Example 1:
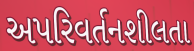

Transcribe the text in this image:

અપરિવર્તનશીલતા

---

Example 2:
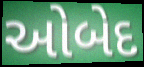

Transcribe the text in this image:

ઓબેદ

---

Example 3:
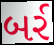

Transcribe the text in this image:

બર્ર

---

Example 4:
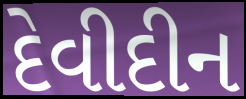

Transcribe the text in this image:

દેવીદીન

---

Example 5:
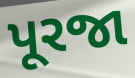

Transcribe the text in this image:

પૂરજા